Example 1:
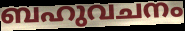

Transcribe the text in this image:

ബഹുവചനം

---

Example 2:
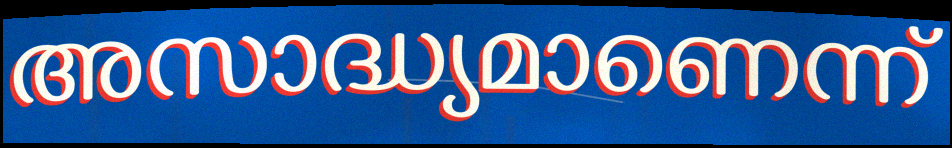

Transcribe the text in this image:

അസാദ്ധ്യമാണെന്ന്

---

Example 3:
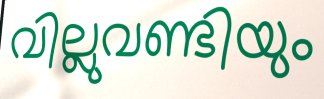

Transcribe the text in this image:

വില്ലുവണ്ടിയും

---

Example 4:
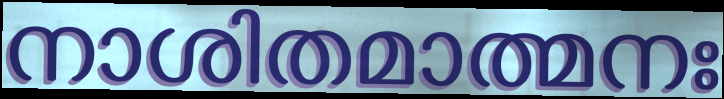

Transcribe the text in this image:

നാശിതമാത്മനഃ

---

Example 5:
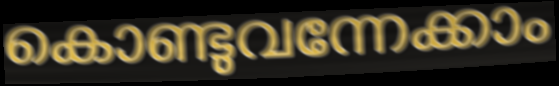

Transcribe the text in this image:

കൊണ്ടുവന്നേക്കാം